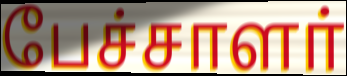
பேச்சாளர்